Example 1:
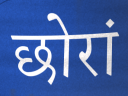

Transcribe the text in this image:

छोरां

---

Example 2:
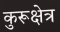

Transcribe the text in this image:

कुरूक्षेत्र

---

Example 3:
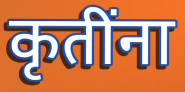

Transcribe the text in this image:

कृतींना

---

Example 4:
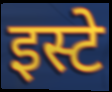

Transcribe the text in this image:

इस्टे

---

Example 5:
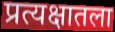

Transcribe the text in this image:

प्रत्यक्षातला